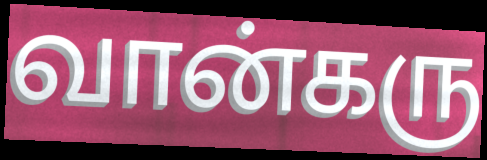
வான்கரு